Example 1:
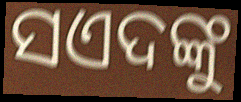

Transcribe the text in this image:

ସଏଦଙ୍କୁ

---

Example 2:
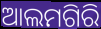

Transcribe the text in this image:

ଆଲମଗିରି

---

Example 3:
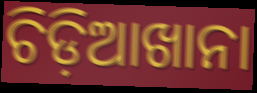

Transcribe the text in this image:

ଚିଡ଼ିଆଖାନା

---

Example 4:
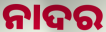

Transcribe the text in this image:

ନାଦର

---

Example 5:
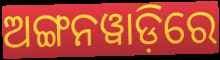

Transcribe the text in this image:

ଅଙ୍ଗନୱାଡ଼ିରେ